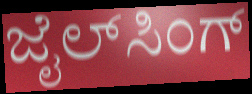
ಜೈಲ್‌ಸಿಂಗ್